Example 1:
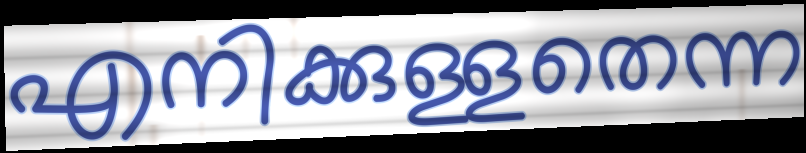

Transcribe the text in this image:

എനിക്കുള്ളതെന്ന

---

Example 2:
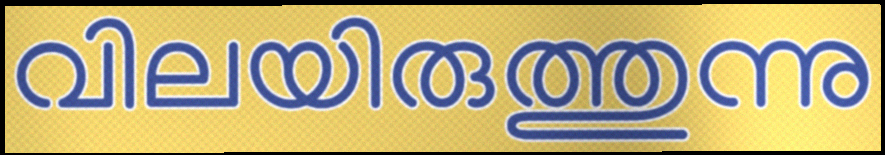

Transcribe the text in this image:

വിലയിരുത്തുന്നു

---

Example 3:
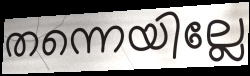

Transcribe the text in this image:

തന്നെയില്ലേ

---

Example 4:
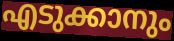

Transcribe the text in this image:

എടുക്കാനും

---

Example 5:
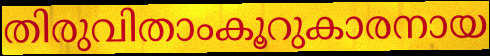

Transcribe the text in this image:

തിരുവിതാംകൂറുകാരനായ